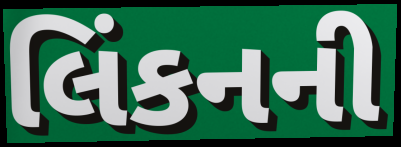
લિંકનની